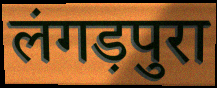
लंगड़पुरा